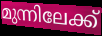
മുന്നിലേക്ക്